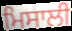
ਮਿਸਾਲੀ